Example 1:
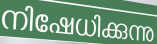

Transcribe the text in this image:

നിഷേധിക്കുന്നു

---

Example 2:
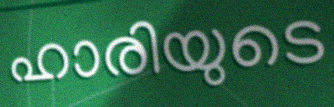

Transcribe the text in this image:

ഹാരിയുടെ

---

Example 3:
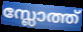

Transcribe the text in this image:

സ്ലോത്ത്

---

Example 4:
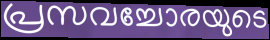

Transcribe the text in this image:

പ്രസവച്ചോരയുടെ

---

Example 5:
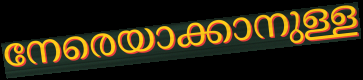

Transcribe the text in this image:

നേരെയാക്കാനുള്ള